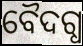
ବୈଦଗ୍ଧ